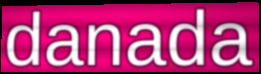
danada